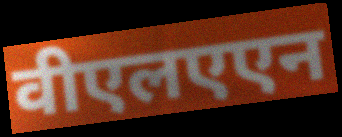
वीएलएएन